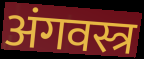
अंगवस्त्र